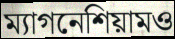
ম্যাগনেশিয়ামও